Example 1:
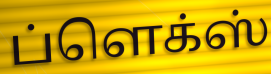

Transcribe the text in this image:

ப்ளெக்ஸ்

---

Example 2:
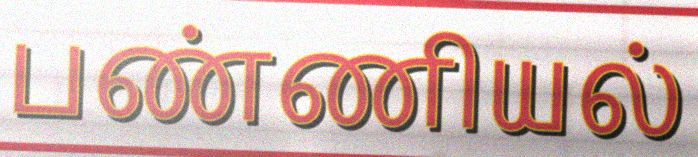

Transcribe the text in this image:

பண்ணியல்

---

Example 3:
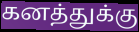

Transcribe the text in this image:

கனத்துக்கு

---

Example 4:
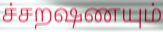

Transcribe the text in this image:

ச்சறஷணயும்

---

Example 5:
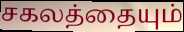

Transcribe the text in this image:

சகலத்தையும்